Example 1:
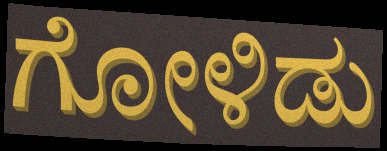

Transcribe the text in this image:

ಗೋಳಿಡು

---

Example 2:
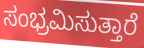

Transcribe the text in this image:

ಸಂಭ್ರಮಿಸುತ್ತಾರೆ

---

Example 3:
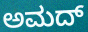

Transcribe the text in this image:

ಅಮದ್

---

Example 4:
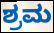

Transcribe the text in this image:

ಶ್ರಮ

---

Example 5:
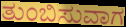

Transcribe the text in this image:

ತುಂಬಿಸುವಾಗ